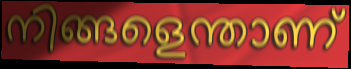
നിങ്ങളെന്താണ്